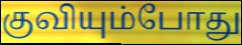
குவியும்போது